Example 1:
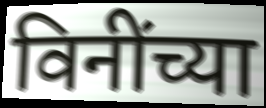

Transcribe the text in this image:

विनींच्या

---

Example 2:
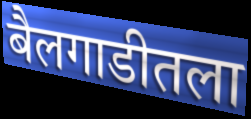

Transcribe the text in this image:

बैलगाडीतला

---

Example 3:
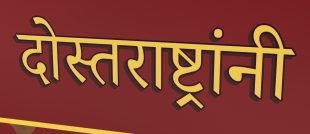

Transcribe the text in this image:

दोस्तराष्ट्रांनी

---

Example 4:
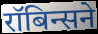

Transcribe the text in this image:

रॉबिन्सने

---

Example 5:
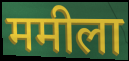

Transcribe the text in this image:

ममीला